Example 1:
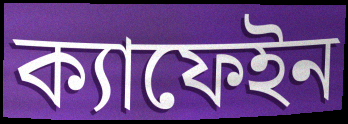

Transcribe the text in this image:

ক্যাফেইন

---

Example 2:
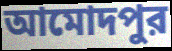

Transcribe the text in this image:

আমোদপুর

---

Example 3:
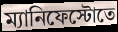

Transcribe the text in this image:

ম্যানিফেস্টোতে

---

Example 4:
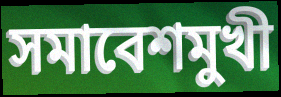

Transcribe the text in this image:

সমাবেশমুখী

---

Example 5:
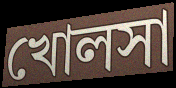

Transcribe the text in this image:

খোলসা